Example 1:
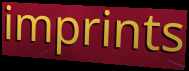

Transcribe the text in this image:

imprints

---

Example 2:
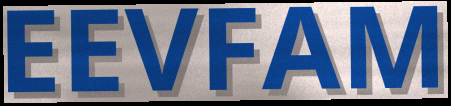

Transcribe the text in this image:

EEVFAM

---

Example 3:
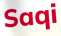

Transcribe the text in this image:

Saqi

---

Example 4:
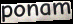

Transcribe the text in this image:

ponam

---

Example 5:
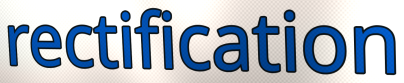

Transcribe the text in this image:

rectification